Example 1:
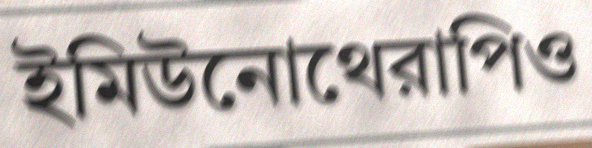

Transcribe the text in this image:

ইমিউনোথেরাপিও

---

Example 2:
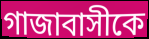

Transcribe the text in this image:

গাজাবাসীকে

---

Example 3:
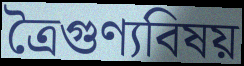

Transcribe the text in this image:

ত্রৈগুণ্যবিষয়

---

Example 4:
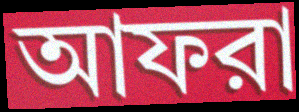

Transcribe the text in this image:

আফরা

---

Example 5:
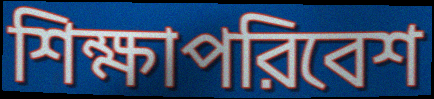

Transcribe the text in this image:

শিক্ষাপরিবেশ